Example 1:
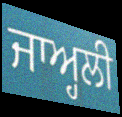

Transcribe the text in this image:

ਜਾਅ੍ਹਲੀ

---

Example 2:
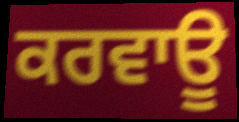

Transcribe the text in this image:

ਕਰਵਾਊ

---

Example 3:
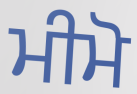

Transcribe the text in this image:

ਮੀਮੋ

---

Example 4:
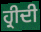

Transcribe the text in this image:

ਹ੍ਰੀਦੀ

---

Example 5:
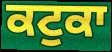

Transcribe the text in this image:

ਕਟੁਕਾ